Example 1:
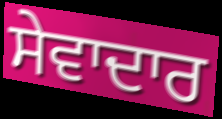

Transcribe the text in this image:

ਸੇਵਾਦਾਰ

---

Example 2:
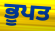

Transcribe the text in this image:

ਭੂਪਤ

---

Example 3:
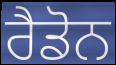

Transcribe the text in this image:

ਰੈਡੋਨ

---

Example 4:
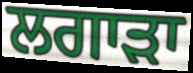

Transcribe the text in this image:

ਲਗਾੜਾ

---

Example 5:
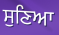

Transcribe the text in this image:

ਸੁਣਿਆ